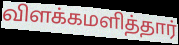
விளக்கமளித்தார்